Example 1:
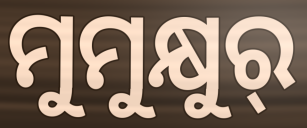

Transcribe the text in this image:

ମୁମୁକ୍ଷୁର୍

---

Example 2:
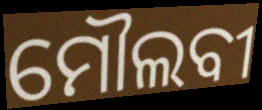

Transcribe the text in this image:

ମୌଲବୀ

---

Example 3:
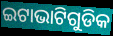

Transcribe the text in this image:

ଇଟାଭାଟିଗୁଡିକ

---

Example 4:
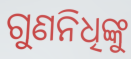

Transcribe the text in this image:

ଗୁଣନିଧିଙ୍କୁ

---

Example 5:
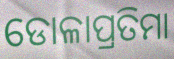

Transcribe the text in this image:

ଡୋଳାପ୍ରତିମା